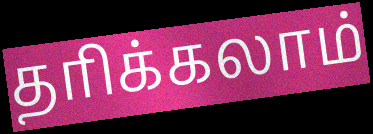
தரிக்கலாம்